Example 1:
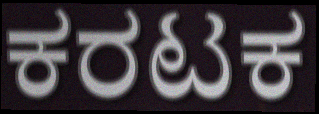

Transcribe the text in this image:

ಕರಟಕ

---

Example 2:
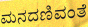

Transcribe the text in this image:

ಮನದಣಿವಂತೆ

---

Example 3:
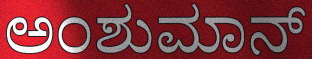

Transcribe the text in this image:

ಅಂಶುಮಾನ್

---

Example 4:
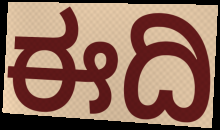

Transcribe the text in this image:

ಈದಿ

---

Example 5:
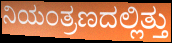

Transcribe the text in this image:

ನಿಯಂತ್ರಣದಲ್ಲಿತ್ತು